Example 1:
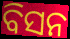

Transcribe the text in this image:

ବିସନ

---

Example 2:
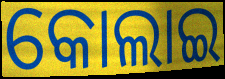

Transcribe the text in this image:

କୋଲାଇ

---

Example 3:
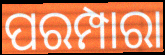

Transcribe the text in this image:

ପରମ୍ପାରା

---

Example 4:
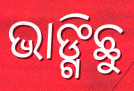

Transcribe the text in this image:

ଭାଙ୍ଗିଛୁ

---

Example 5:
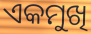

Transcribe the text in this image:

ଏକମୁଖି